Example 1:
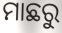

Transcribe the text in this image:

ମାଛରୁ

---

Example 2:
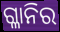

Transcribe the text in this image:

ଗ୍ଳାନିର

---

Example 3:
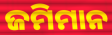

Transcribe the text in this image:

ଜମିମାନ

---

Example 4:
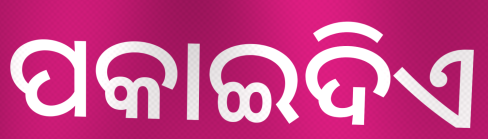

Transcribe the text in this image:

ପକାଇଦିଏ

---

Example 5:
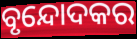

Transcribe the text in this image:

ବୃନ୍ଦୋଦକର